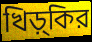
খিড়্‌কির